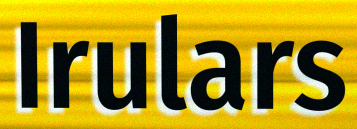
Irulars